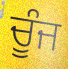
ਚੂੰਜ